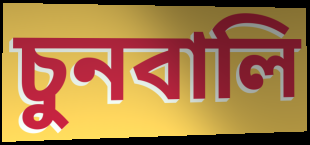
চুনবালি